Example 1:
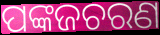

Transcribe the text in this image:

ପଙ୍କଜଚରଣ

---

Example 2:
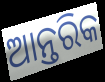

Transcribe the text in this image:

ଆନ୍ତରିକ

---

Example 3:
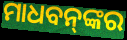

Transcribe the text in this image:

ମାଧବନ୍‌ଙ୍କର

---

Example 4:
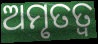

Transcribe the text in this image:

ଅମୃତତ୍ବ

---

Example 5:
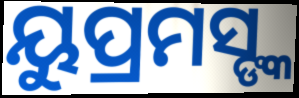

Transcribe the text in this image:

ୟୁପ୍ରମସ୍ଙ୍କ